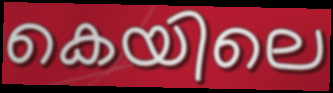
കെയിലെ